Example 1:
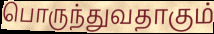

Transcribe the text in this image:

பொருந்துவதாகும்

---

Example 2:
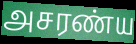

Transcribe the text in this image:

அசரண்ய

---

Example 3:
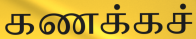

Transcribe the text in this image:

கணக்கச்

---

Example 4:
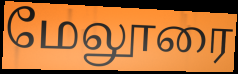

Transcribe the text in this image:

மேலூரை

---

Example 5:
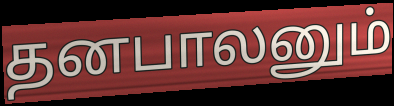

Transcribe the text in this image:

தனபாலனும்